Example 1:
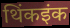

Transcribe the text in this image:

थिंकइंक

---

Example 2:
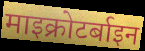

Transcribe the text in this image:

माइक्रोटर्बाइन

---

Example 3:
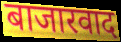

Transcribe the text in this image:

बाजारवाद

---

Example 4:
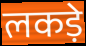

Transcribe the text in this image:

लकड़े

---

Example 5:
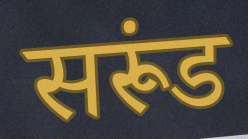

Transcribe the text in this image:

सरूंड